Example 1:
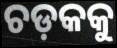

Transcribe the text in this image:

ଚଡ଼କକୁ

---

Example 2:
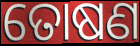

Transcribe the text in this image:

ତୋଷଣ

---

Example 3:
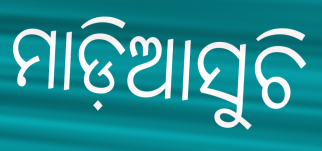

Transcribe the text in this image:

ମାଡ଼ିଆସୁଚି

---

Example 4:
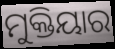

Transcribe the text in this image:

ମୁକ୍ତିୟାର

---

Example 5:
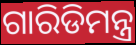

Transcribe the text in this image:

ଗାରିଡିମନ୍ତ୍ର